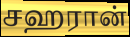
சஹரான்